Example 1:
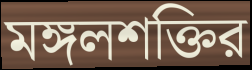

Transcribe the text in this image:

মঙ্গলশক্তির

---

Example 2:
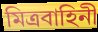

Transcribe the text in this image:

মিত্রবাহিনী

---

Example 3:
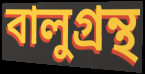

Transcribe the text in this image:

বালুগ্রন্থ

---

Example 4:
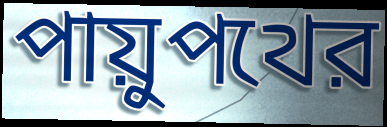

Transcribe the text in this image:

পায়ুপথের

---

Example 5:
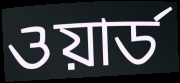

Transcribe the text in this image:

ওয়ার্ড